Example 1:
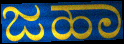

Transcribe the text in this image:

ಜಹಾ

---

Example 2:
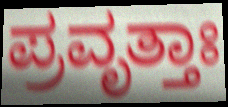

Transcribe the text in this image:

ಪ್ರವೃತ್ತಾಃ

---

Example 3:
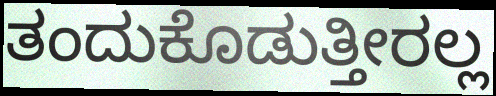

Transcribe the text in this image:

ತಂದುಕೊಡುತ್ತೀರಲ್ಲ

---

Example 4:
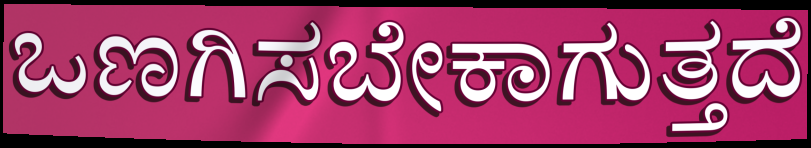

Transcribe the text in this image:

ಒಣಗಿಸಬೇಕಾಗುತ್ತದೆ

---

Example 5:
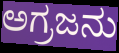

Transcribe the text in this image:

ಅಗ್ರಜನು